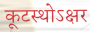
कूटस्थोऽक्षर